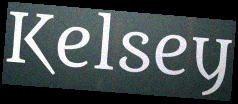
Kelsey